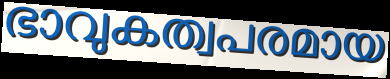
ഭാവുകത്വപരമായ